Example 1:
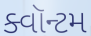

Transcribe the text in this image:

ક્વૉન્ટમ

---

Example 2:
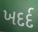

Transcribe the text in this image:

ખદર્દ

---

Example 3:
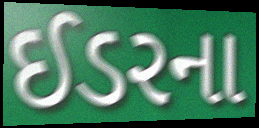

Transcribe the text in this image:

ઈડરના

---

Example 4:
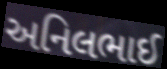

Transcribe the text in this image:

અનિલભાઈ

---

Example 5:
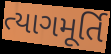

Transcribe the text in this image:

ત્યાગમૂર્તિ